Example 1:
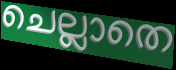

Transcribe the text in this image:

ചെല്ലാതെ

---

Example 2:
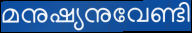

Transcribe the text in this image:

മനുഷ്യനുവേണ്ടി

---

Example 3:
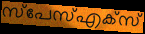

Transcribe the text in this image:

സ്പേസ്എക്സ്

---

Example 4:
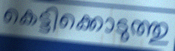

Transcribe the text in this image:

കെട്ടിക്കൊടുത്തു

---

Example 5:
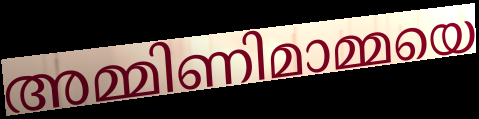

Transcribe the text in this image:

അമ്മിണിമാമ്മയെ